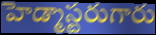
హెడ్మాస్టరుగారు